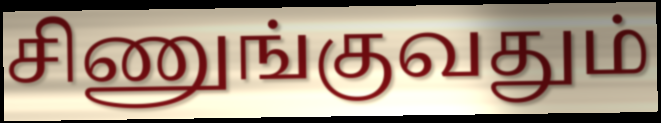
சிணுங்குவதும்